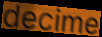
decime